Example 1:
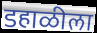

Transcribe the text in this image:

डहाळीला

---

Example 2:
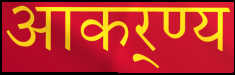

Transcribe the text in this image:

आकर्ण्य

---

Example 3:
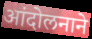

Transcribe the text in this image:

आंदोलनाने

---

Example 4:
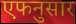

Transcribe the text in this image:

एफनुसार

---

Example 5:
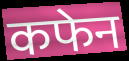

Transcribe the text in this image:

कफेन